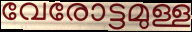
വേരോട്ടമുള്ള